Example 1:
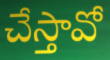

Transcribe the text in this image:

చేస్తావో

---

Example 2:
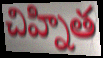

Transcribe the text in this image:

చిహ్నిత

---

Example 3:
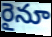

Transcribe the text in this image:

రైనూ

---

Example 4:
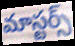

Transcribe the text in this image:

మాస్టర్స్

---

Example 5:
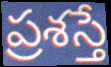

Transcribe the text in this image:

ప్రశస్తే